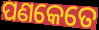
ପଣକେତେ